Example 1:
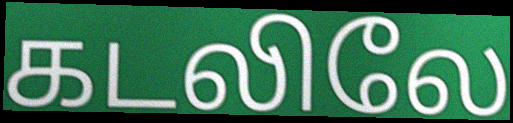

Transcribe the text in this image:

கடலிலே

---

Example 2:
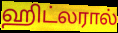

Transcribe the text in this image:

ஹிட்லரால்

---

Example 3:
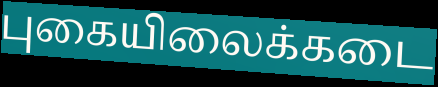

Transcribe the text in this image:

புகையிலைக்கடை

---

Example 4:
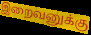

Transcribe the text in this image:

இறைவனுக்கு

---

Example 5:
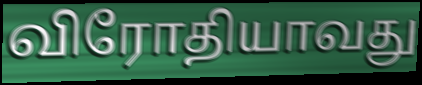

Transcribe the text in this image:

விரோதியாவது